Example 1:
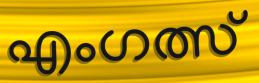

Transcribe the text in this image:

എംഗത്സ്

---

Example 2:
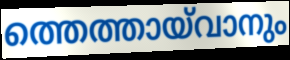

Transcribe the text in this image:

ത്തെത്തായ്‌വാനും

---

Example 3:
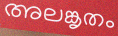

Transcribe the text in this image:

അലങ്കൃതം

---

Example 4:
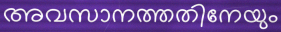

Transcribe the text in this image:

അവസാനത്തതിനേയും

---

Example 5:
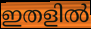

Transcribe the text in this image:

ഇതളിൽ